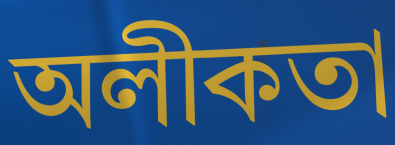
অলীকতা